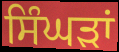
ਸਿੰਘੜਾਂ